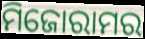
ମିଜୋରାମର